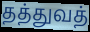
தத்துவத்